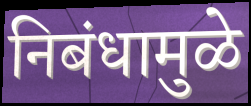
निबंधामुळे